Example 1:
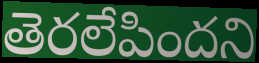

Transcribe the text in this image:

తెరలేపిందని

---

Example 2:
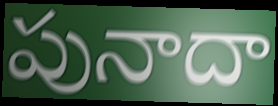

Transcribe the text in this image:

పునాదా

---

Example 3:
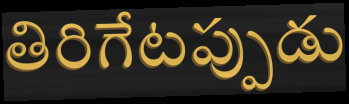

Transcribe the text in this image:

తిరిగేటప్పుడు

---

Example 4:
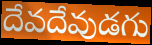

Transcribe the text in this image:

దేవదేవుడగు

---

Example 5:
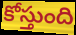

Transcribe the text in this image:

కోస్తుంది